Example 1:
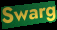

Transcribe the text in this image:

Swarg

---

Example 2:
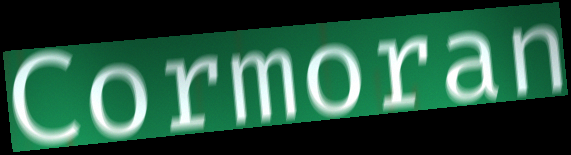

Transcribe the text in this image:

Cormoran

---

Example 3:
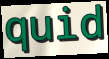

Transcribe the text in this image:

quid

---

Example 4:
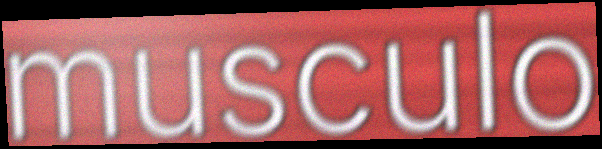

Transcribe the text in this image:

musculo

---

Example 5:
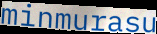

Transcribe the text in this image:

minmurasu